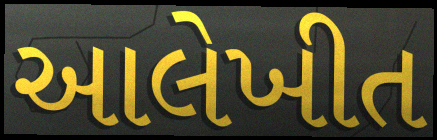
આલેખીત